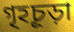
গৃহচূড়া